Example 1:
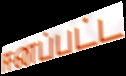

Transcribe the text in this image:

ஈனப்பட்ட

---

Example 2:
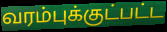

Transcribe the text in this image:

வரம்புக்குட்பட்ட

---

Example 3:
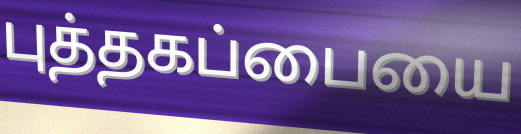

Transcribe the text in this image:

புத்தகப்பையை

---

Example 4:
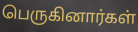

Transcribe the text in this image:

பெருகினார்கள்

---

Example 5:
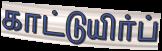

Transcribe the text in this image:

காட்டுயிர்ப்